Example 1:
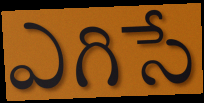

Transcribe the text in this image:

ఎగిసే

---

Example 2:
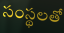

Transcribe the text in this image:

సంస్థలతో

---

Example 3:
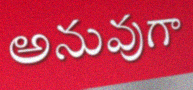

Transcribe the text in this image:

అనువుగా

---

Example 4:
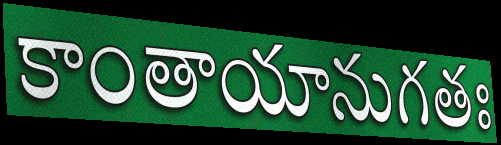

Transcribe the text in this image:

కాంతాయానుగతః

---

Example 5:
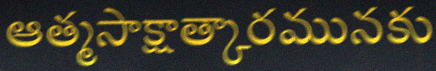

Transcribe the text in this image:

ఆత్మసాక్షాత్కారమునకు